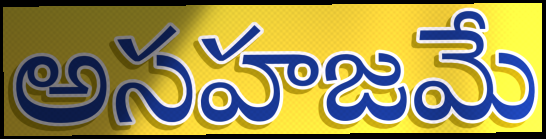
అసహజమే